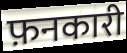
फ़नकारी